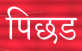
पिछड